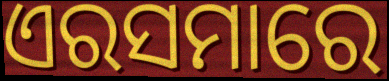
ଏରସମାରେ